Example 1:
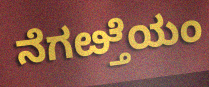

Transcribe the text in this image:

ನೆಗೞ್ತೆಯಂ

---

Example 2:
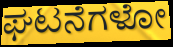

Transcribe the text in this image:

ಘಟನೆಗಳೋ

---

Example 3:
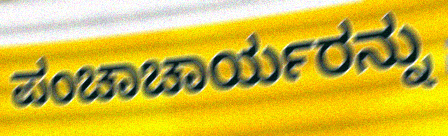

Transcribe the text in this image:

ಪಂಚಾಚಾರ್ಯರನ್ನು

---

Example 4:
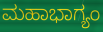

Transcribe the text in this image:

ಮಹಾಭಾಗ್ಯಂ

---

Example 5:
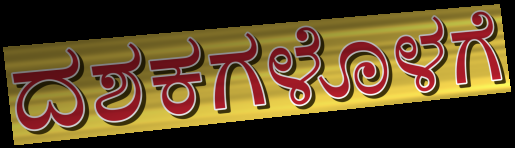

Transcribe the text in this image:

ದಶಕಗಳೊಳಗೆ